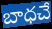
బాధచే